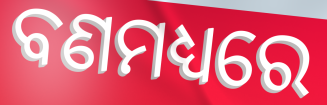
ବଣମଧ୍ଯରେ